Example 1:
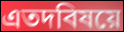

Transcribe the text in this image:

এতদবিষয়ে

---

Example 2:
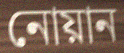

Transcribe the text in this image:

নোয়ান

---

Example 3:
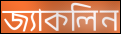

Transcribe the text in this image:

জ্যাকলিন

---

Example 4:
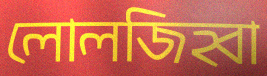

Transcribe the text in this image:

লোলজিহ্বা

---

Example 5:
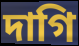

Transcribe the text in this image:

দাগি